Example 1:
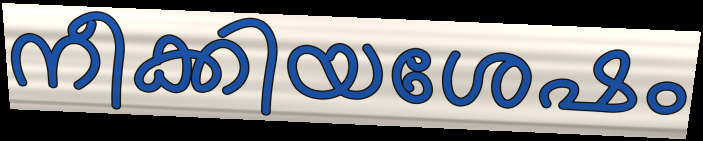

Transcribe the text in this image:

നീക്കിയശേഷം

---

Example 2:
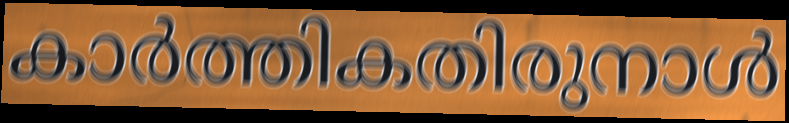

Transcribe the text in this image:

കാർത്തികതിരുനാൾ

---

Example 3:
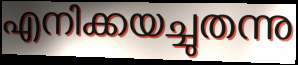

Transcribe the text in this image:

എനിക്കയച്ചുതന്നു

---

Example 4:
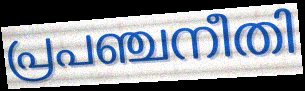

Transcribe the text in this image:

പ്രപഞ്ചനീതി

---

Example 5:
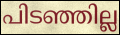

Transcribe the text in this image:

പിടഞ്ഞില്ല